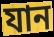
যান